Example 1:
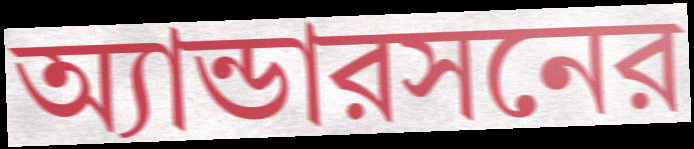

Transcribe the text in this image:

অ্যান্ডারসনের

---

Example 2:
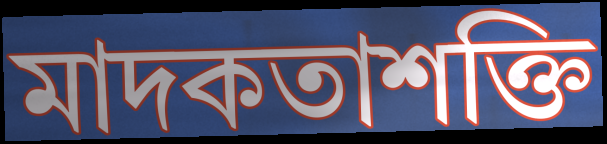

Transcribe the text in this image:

মাদকতাশক্তি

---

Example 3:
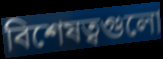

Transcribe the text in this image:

বিশেষত্বগুলো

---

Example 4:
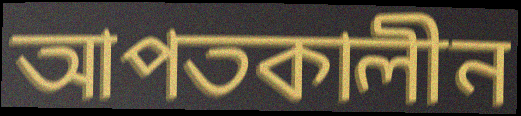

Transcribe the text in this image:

আপতকালীন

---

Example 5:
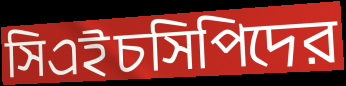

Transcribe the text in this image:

সিএইচসিপিদের